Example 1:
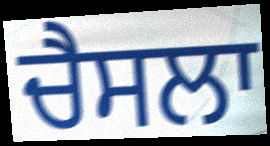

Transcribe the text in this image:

ਚੈਸਲਾ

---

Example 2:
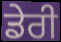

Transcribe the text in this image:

ਡੇਰੀ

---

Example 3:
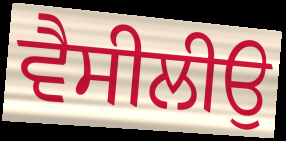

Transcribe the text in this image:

ਵੈਸੀਲੀਉ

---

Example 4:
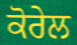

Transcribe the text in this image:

ਕੋਰੇਲ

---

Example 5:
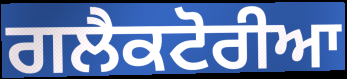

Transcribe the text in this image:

ਗਲੈਕਟੋਰੀਆ